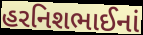
હરનિશભાઈનાં